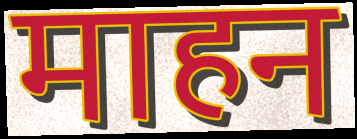
माहन